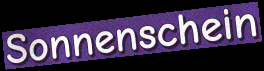
Sonnenschein